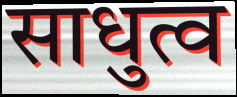
साधुत्व